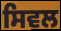
ਸਿਵਲ